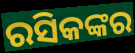
ରସିକଙ୍କର